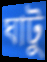
ঘাটু